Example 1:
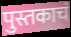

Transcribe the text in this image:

पुस्तकाचं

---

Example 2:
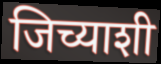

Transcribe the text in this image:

जिच्याशी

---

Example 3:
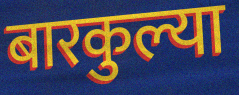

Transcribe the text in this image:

बारकुल्या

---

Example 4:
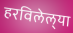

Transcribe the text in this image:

हरविलेल्या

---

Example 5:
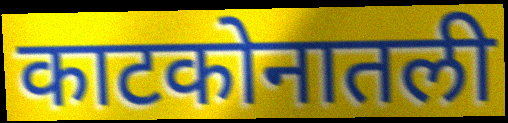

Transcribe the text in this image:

काटकोनातली